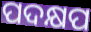
ପଦକ୍ଷପ